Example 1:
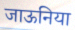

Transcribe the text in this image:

जाऊनिया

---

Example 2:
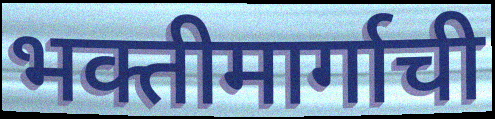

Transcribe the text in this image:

भक्तीमार्गाची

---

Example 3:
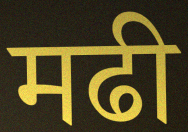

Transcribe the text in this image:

मढी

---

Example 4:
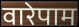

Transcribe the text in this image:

वारेपाम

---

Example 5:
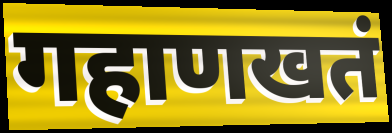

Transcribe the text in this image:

गहाणखतं